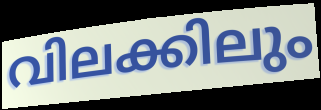
വിലക്കിലും